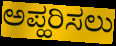
ಅಪ್ಹರಿಸಲು